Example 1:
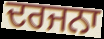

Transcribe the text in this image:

ਦਰਜਨਾ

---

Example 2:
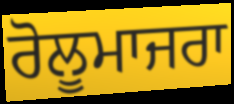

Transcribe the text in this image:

ਰੋਲੂਮਾਜਰਾ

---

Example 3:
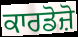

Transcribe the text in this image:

ਕਾਰਡੋਜ਼ੋ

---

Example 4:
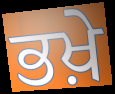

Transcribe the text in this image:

ਭਖ਼ੇ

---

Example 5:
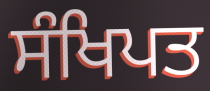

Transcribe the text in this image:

ਸੰਖਿਪਤ